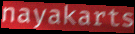
nayakarts